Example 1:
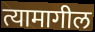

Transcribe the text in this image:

त्यामागील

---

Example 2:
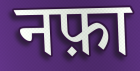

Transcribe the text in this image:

नफ़ा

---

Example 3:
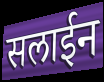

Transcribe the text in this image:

सलाईन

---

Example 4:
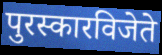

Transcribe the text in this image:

पुरस्कारविजेते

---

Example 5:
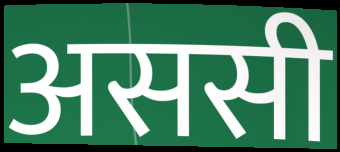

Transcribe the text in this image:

अससी